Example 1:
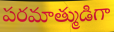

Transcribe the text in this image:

పరమాత్ముడిగా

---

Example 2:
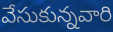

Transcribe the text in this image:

వేసుకున్నవారి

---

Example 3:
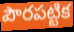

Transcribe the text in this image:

పౌరపట్టిక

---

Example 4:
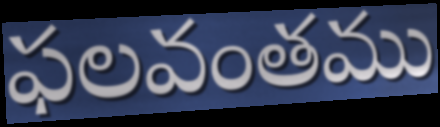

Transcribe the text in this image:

ఫలవంతము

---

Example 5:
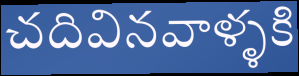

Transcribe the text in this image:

చదివినవాళ్ళకి